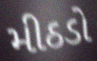
મીઠડો